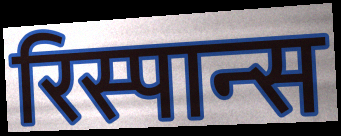
रिस्पान्स